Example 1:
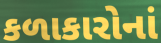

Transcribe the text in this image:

કળાકારોનાં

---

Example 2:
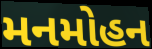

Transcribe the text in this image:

મનમોહન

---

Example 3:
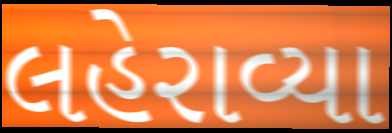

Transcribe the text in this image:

લહેરાવ્યા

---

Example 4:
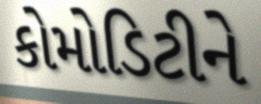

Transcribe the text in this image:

કોમોડિટીને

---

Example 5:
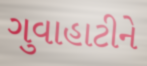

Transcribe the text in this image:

ગુવાહાટીને